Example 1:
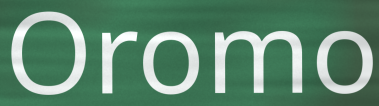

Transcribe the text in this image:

Oromo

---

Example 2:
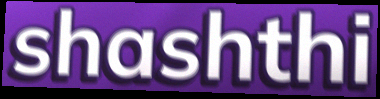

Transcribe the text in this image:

shashthi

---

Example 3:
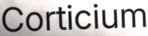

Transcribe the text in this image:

Corticium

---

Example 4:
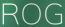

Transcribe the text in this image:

ROG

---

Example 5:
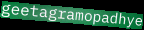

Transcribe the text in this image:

geetagramopadhye